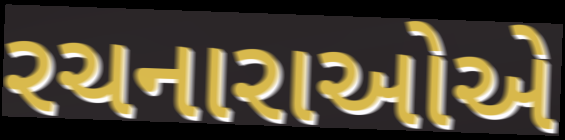
રચનારાઓએ